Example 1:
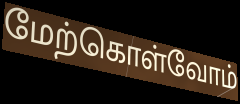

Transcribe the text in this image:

மேற்கொள்வோம்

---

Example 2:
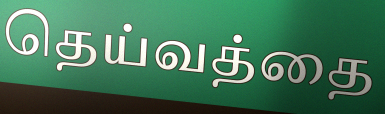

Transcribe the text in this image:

தெய்வத்தை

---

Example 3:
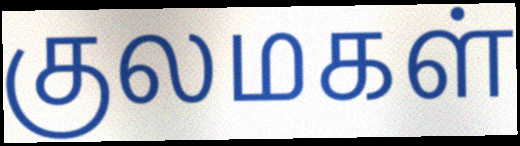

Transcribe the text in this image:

குலமகள்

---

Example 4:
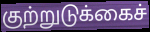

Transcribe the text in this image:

குற்றுடுக்கைச்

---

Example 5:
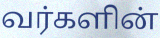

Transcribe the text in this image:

வர்களின்